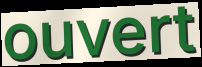
ouvert